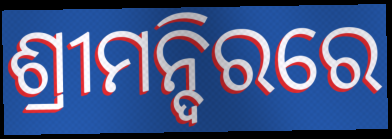
ଶ୍ରୀମନ୍ଦିରରେ